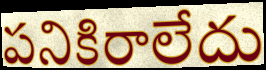
పనికిరాలేదు